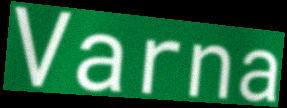
Varna